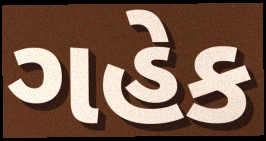
ગહેક